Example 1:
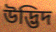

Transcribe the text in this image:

উদ্ভিদ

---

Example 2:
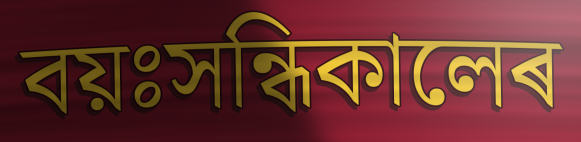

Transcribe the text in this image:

বয়ঃসন্ধিকালেৰ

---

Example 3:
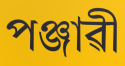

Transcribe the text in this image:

পঞ্জাৱী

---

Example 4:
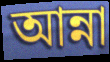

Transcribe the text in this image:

আন্না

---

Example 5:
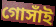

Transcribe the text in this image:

গোসাঁই